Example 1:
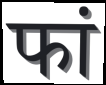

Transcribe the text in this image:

फां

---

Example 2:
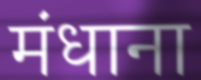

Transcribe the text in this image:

मंधाना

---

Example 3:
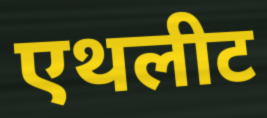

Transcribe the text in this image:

एथलीट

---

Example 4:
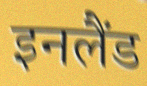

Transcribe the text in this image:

इनलैंड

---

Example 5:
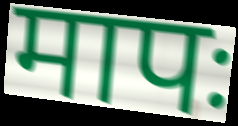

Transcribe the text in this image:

मापः